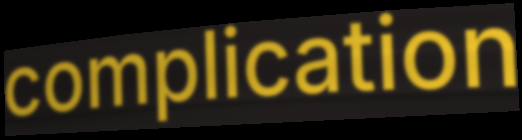
complication